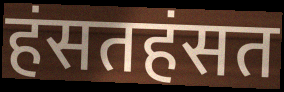
हंसतहंसत